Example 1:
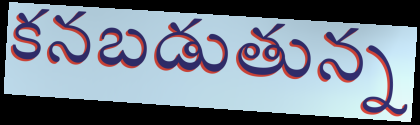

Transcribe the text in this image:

కనబడుతున్న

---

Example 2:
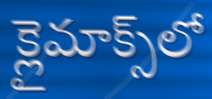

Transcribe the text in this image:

క్లైమాక్స్‌లో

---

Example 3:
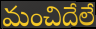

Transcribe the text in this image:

మంచిదేలే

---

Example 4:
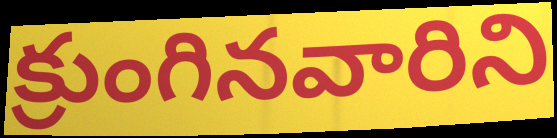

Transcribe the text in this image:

క్రుంగినవారిని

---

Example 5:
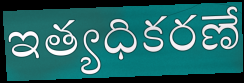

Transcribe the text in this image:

ఇత్యధికరణే